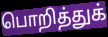
பொறித்துக்